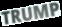
TRUMP